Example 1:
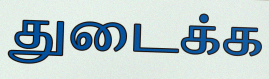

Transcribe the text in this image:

துடைக்க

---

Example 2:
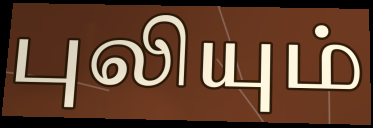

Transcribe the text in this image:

புலியும்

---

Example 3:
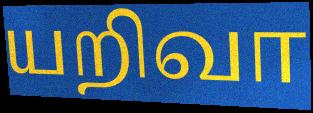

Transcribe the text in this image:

யறிவா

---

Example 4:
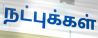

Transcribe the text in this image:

நட்புக்கள்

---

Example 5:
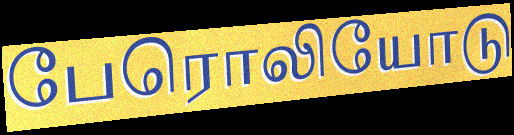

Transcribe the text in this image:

பேரொலியோடு